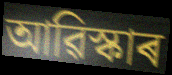
আৱিস্কাৰ